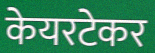
केयरटेकर